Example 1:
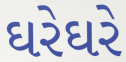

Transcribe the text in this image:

ઘરેઘરે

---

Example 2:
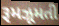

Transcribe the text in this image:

રૂમઝૂમતી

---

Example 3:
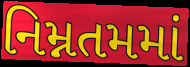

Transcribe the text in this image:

નિમ્નતમમાં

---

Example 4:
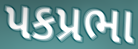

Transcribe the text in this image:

પકપ્રભા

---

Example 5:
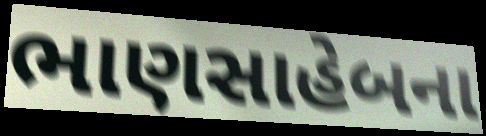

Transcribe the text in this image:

ભાણસાહેબના